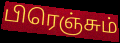
பிரெஞ்சும்